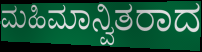
ಮಹಿಮಾನ್ವಿತರಾದ